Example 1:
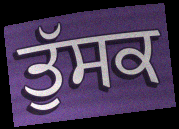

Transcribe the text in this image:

ਤੁੱਸਕ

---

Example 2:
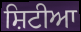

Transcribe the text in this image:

ਸ਼ਿਟੀਆ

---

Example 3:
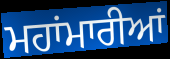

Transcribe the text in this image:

ਮਹਾਂਮਾਰੀਆਂ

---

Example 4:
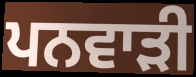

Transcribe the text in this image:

ਪਨਵਾੜੀ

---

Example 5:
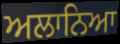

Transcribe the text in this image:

ਅਲਾਨਿਆ